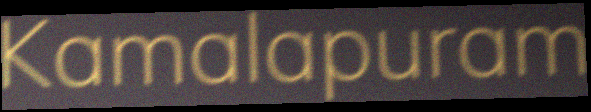
Kamalapuram